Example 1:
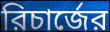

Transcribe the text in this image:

রিচার্জের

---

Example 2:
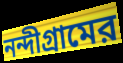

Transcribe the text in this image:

নন্দীগ্রামের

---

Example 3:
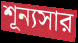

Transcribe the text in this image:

শূন্যসার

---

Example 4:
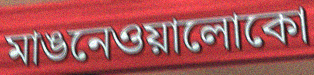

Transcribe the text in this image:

মাঙনেওয়ালোকো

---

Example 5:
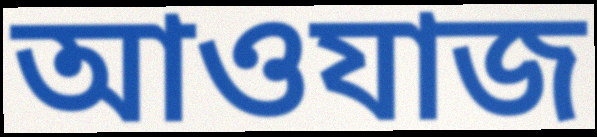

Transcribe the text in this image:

আওযাজ